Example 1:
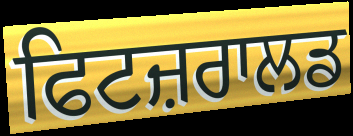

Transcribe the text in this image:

ਫਿਟਜ਼ਰਾਲਡ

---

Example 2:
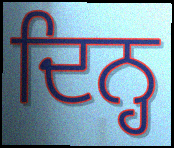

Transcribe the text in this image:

ਦਿਨ੍ਹ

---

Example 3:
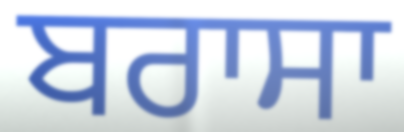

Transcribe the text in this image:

ਬਰਾਸਾ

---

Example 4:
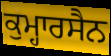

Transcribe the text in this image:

ਕੁਮ੍ਹਾਰਸੈਨ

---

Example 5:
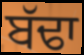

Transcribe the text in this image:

ਬੱਢਾ